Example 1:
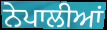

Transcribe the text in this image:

ਨੇਪਾਲੀਆਂ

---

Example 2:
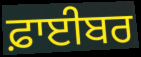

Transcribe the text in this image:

ਫ਼ਾਈਬਰ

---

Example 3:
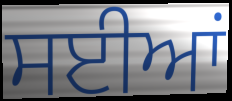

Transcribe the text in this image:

ਸਈਆਂ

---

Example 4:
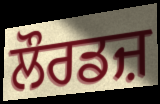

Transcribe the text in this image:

ਲੌਰਡਜ਼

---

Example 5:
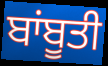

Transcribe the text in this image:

ਬਾਂਬੂਤੀ